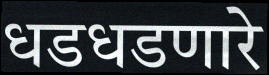
धडधडणारे